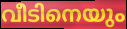
വീടിനെയും